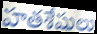
హతశేషులు